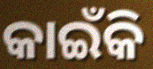
କାଇଁକି